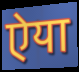
ऐया